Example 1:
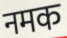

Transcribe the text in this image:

नमक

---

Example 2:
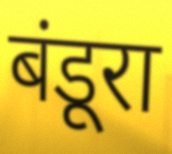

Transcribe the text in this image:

बंडूरा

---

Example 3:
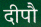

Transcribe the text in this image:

दीपौ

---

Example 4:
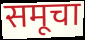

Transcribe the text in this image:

समूचा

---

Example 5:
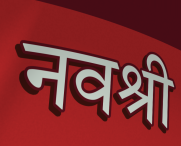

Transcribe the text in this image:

नवश्री